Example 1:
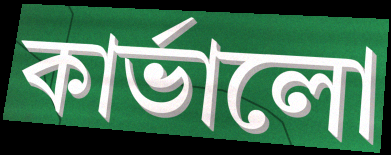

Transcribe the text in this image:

কার্ভালো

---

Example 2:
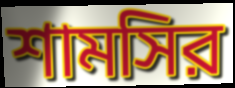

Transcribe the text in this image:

শামসির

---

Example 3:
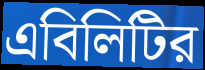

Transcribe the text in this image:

এবিলিটির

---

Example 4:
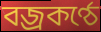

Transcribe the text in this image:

বজ্রকণ্ঠে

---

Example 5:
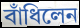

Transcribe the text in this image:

বাঁধিলেন